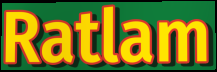
Ratlam